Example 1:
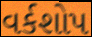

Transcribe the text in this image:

વર્કશોપ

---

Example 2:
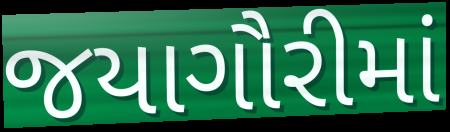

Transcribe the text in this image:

જયાગૌરીમાં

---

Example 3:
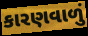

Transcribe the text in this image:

કારણવાળું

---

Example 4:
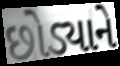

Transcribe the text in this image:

છોડ્યાને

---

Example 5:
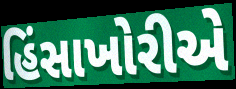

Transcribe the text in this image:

હિંસાખોરીએ